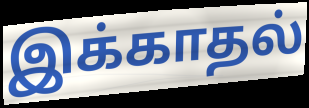
இக்காதல்